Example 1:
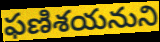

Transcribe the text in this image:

ఫణిశయనుని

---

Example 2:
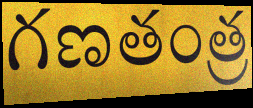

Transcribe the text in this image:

గణతంత్ర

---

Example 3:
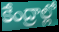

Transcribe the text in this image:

కేంద్రాల్లో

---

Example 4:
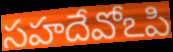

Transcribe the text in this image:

సహదేవోఽపి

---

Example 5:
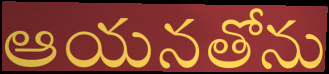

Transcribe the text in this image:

ఆయనతోను